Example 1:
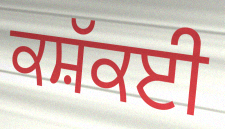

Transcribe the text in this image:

ਕਸ਼ੱਕਈ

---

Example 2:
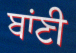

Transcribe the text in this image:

ਬਾਂਣੀ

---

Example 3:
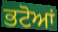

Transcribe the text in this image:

ਭਟੋਆਂ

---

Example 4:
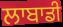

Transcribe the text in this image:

ਲਾਬਾਡੀ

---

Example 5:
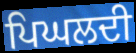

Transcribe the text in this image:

ਪਿਘਲਦੀ